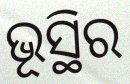
ଭୂସ୍ଥିର